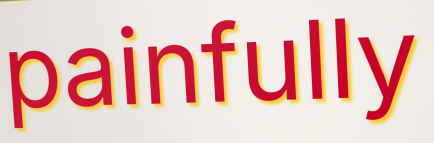
painfully